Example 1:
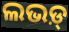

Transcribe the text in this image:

ଲଭଡ଼୍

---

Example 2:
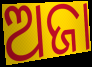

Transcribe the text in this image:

ଅଜା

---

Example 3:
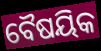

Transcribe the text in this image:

ବୈଷୟିକ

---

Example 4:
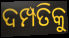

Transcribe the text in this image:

ଦମ୍ପତିକୁ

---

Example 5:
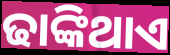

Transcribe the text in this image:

ଢାଙ୍କିଥାଏ